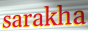
sarakha